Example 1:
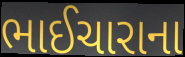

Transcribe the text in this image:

ભાઈચારાના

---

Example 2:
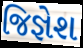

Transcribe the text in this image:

જિજ્ઞેશ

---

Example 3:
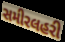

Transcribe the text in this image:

સમીરલહરી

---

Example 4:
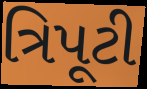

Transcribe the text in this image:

ત્રિપૂટી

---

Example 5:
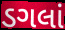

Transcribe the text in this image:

ડગલાં